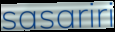
sasariri